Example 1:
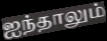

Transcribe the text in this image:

ஐந்தாலும்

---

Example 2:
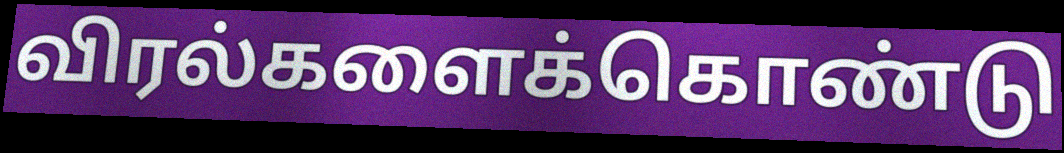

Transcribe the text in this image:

விரல்களைக்கொண்டு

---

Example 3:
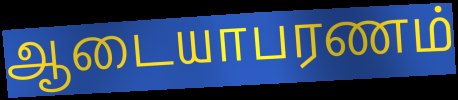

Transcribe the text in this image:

ஆடையாபரணம்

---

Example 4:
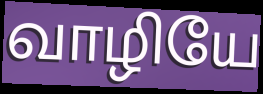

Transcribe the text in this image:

வாழியே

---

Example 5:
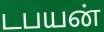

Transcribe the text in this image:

டபயன்